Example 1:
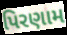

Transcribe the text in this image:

પિરણામ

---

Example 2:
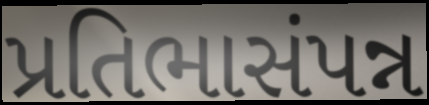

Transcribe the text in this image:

પ્રતિભાસંપન્ન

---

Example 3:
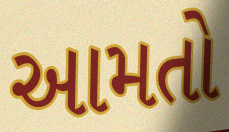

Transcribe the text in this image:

આમતો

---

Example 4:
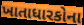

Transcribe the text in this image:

ખાતાધારકોના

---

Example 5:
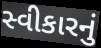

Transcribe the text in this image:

સ્વીકારનું